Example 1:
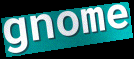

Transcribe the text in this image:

gnome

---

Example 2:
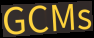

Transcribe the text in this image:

GCMs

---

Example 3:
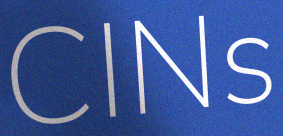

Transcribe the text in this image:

CINs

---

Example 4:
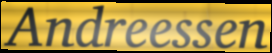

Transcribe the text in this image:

Andreessen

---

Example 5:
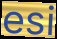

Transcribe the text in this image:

esi